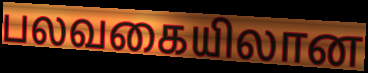
பலவகையிலான